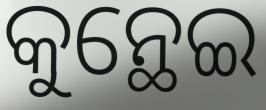
କୁନ୍ଥେଇ